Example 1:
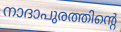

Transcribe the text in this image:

നാദാപുരത്തിന്റെ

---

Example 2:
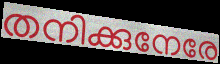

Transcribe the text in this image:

തനിക്കുനേരേ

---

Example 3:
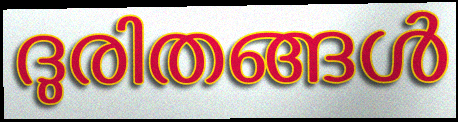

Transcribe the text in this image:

ദുരിതങ്ങൾ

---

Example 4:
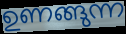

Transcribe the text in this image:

ഉണങ്ങുന്ന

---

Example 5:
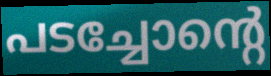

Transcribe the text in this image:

പടച്ചോന്റെ